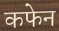
कफेन